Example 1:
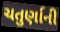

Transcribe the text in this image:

ચતુર્ણાની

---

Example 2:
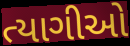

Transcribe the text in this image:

ત્યાગીઓ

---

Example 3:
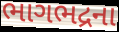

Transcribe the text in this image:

ભાગભદ્રના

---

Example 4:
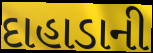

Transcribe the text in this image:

દાહાડાની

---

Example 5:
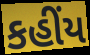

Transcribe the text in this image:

કહીંય